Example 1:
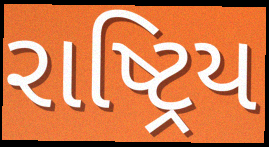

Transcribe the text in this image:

રાષ્ટ્રિય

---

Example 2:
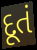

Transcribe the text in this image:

દૂતં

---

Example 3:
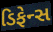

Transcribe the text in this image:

ડિફેન્સ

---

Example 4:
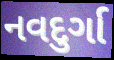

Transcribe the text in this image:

નવદુર્ગા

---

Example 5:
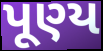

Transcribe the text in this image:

પૂણ્ય